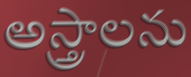
అస్త్రాలను